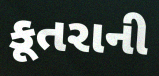
કૂતરાની